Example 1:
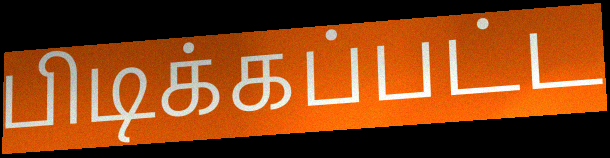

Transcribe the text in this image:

பிடிக்கப்பட்ட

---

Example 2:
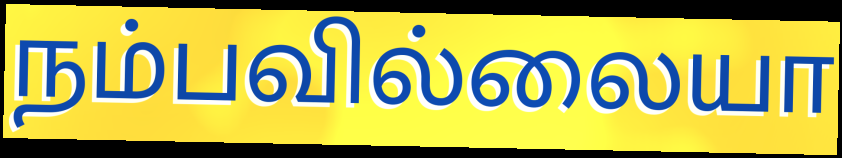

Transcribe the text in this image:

நம்பவில்லையா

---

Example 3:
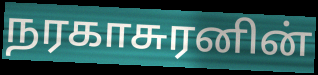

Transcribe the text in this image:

நரகாசுரனின்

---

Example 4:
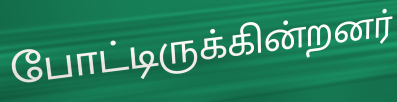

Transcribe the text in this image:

போட்டிருக்கின்றனர்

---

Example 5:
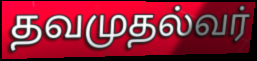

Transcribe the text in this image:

தவமுதல்வர்